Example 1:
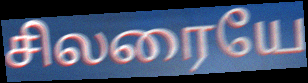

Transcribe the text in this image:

சிலரையே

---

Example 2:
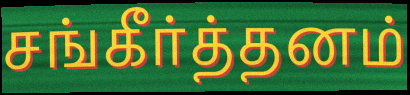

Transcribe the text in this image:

சங்கீர்த்தனம்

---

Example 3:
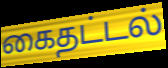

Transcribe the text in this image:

கைதட்டல்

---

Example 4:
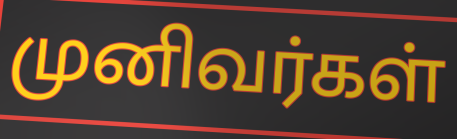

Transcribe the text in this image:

முனிவர்கள்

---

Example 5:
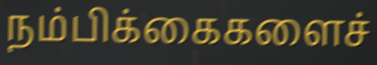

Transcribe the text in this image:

நம்பிக்கைகளைச்